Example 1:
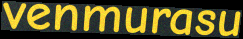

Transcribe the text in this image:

venmurasu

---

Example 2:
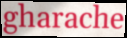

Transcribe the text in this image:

gharache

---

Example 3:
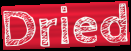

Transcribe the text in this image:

Dried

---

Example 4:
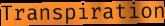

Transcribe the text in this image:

Transpiration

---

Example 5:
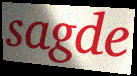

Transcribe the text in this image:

sagde